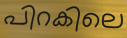
പിറകിലെ